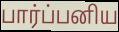
பார்ப்பனிய